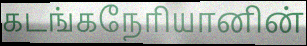
கடங்கநேரியானின்